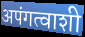
अपंगत्वाशी